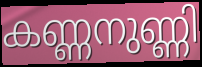
കണ്ണനുണ്ണി